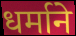
धर्माने